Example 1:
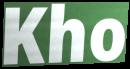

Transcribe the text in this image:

Kho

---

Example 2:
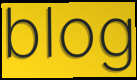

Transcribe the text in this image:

blog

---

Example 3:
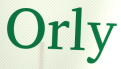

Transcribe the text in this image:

Orly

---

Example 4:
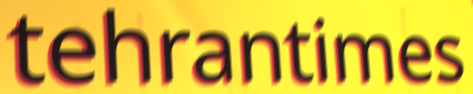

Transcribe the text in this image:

tehrantimes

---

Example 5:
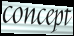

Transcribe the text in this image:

concept